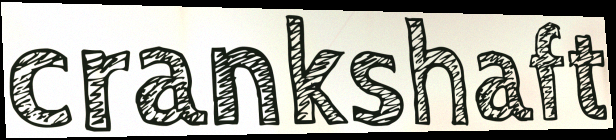
crankshaft